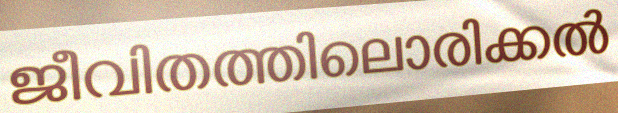
ജീവിതത്തിലൊരിക്കൽ